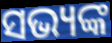
ସଭ୍ୟଙ୍କ